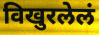
विखुरलेलं